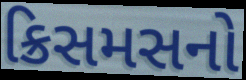
ક્રિસમસનો